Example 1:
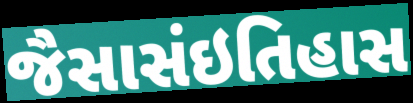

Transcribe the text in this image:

જૈસાસંઇતિહાસ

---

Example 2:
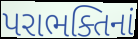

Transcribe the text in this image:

પરાભક્તિનાં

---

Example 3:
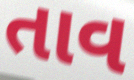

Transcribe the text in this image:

તાવ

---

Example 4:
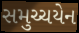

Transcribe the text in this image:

સમુચ્ચયેન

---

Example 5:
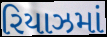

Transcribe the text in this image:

રિયાઝમાં